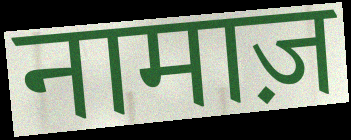
नामाज़